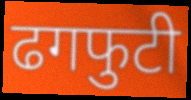
ढगफुटी